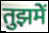
तुझमें